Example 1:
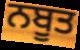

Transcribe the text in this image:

ਨਬੂਤ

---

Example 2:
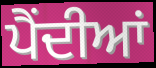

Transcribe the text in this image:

ਪੈਂਦੀਆਂ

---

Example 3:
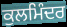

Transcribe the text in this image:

ਕੁਲਮਿੰਦਰ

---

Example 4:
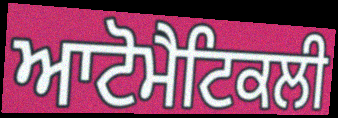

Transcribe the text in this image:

ਆਟੋਮੈਟਿਕਲੀ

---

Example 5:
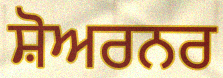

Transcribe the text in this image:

ਸ਼ੋਅਰਨਰ